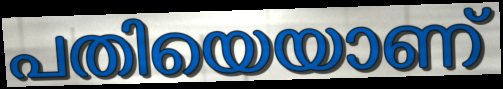
പതിയെയാണ്